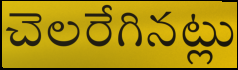
చెలరేగినట్లు